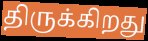
திருக்கிறது